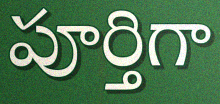
పూర్తిగా